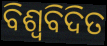
ବିଶ୍ବବିଦିତ